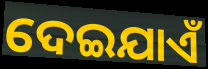
ଦେଇଯାଏଁ